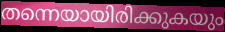
തന്നെയായിരിക്കുകയും